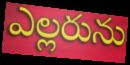
ఎల్లరును